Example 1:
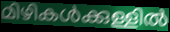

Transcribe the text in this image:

മിഴികൾക്കുള്ളിൽ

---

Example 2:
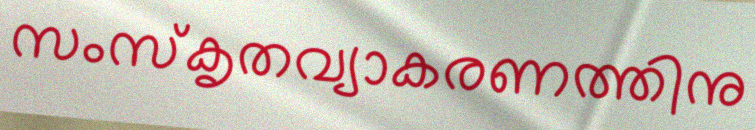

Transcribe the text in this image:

സംസ്കൃതവ്യാകരണത്തിനു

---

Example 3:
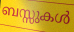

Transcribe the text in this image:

ബസ്സുകൾ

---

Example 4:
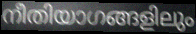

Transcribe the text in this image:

നീതിയാഗങ്ങളിലും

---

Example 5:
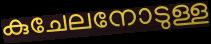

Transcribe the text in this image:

കുചേലനോടുള്ള